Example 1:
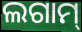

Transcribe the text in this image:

ଲଗାମ୍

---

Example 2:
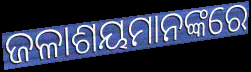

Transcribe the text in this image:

ଜଳାଶୟମାନଙ୍କରେ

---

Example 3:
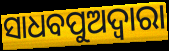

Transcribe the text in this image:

ସାଧବପୁଅଦ୍ୱାରା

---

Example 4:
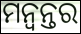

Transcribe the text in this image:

ମନ୍ବନ୍ତର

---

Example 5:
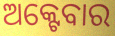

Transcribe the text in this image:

ଅକ୍ଟେବାର